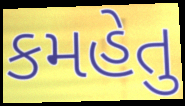
કમહેતુ